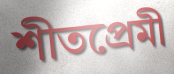
শীতপ্রেমী